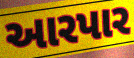
આરપાર